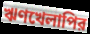
ঋণখেলাপির